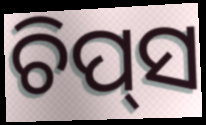
ଚିପ୍‌ସ